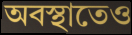
অবস্থাতেও